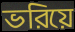
ভরিয়ে